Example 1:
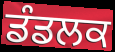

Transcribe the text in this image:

ਡੰਡਲਕ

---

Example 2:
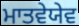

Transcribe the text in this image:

ਮਾਤਵੇਯੇਵ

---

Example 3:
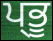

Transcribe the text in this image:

ਪ੍ਭੂ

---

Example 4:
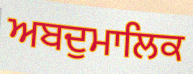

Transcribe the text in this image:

ਅਬਦੁਮਾਲਿਕ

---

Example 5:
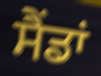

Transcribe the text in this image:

ਸੈਂਡਾਂ